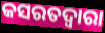
କସରତଦ୍ୱାରା